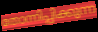
തോന്നിപ്പിക്കുന്ന